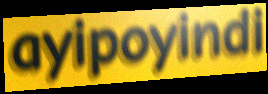
ayipoyindi